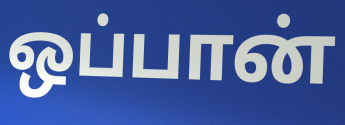
ஒப்பான்